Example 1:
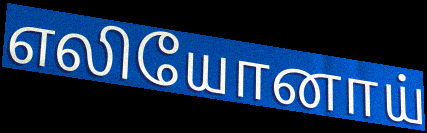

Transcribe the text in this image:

எலியோனாய்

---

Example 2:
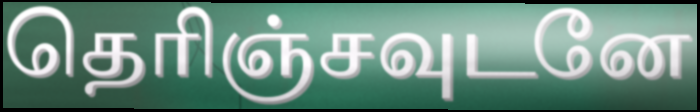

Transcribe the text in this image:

தெரிஞ்சவுடனே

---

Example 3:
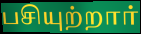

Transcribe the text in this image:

பசியுற்றார்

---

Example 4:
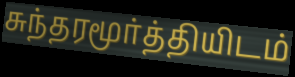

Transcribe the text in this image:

சுந்தரமூர்த்தியிடம்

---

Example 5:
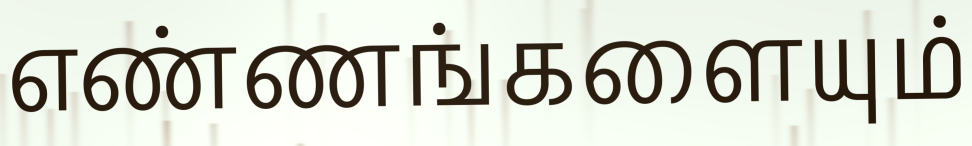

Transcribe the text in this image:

எண்ணங்களையும்